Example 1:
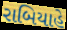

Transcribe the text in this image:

રાબિયાહે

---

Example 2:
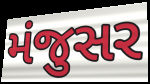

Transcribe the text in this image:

મંજુસર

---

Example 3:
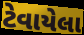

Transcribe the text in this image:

ટેવાયેલા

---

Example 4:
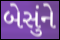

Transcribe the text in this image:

બેસુંને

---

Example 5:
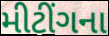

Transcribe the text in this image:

મીટીંગના